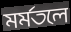
মর্মতলে